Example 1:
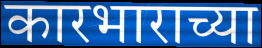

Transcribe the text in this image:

कारभाराच्या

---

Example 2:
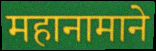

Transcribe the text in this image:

महानामाने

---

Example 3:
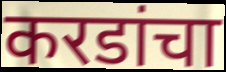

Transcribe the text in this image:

करडांचा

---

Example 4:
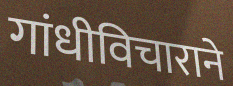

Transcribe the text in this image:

गांधीविचाराने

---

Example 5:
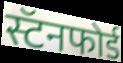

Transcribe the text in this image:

स्टॅनफोर्ड